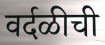
वर्दळीची